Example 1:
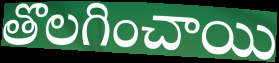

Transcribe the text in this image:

తొలగించాయి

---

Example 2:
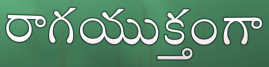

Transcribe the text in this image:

రాగయుక్తంగా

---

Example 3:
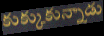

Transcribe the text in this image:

కుక్కుకున్నాడు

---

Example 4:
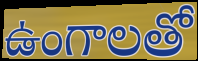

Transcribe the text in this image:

ఉంగాలతో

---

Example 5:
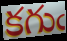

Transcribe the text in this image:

కగుఁ